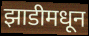
झाडीमधून